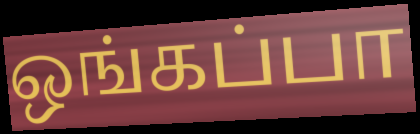
ஒங்கப்பா